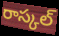
రాస్కల్